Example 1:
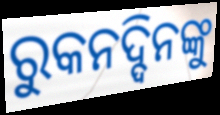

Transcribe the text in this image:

ରୁକନଦ୍ଦିନଙ୍କୁ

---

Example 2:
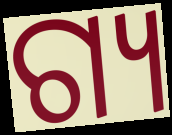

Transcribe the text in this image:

ଗ୍ୟ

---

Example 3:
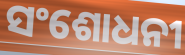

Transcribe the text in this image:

ସଂଶୋଧନୀ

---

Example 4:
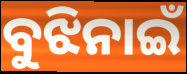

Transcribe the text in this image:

ବୁଝିନାଇଁ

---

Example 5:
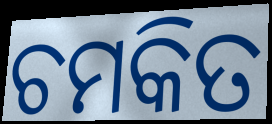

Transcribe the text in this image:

ଚମକିତ